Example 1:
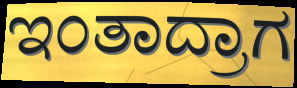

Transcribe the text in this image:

ಇಂತಾದ್ರಾಗ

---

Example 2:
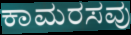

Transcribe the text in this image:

ಕಾಮರಸವು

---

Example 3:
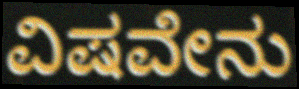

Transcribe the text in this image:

ವಿಷವೇನು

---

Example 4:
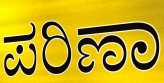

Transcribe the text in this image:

ಪರಿಣಾ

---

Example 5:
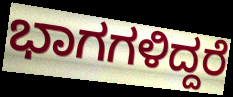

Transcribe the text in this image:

ಭಾಗಗಳಿದ್ದರೆ